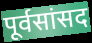
पूर्वसांसद